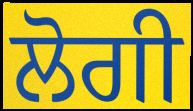
ਲੋਗੀ